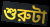
শুরুটা